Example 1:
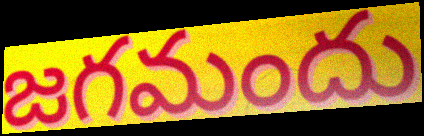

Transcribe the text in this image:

జగమందు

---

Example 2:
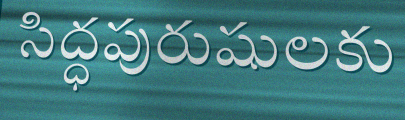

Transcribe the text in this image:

సిద్ధపురుషులకు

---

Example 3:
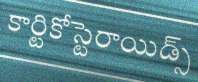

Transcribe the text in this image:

కార్టికోస్టెరాయిడ్స్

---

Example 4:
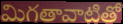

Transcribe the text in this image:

మిగతావాటితో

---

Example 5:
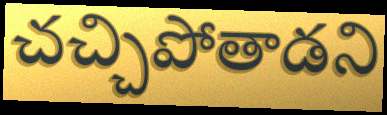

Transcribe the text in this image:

చచ్చిపోతాడని